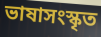
ভাষাসংস্কৃত